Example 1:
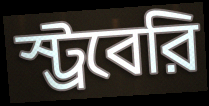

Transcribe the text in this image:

স্ট্রবেরি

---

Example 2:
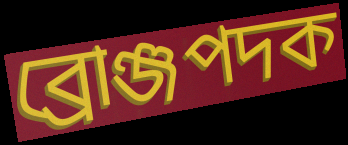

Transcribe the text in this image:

ব্রোঞ্জপদক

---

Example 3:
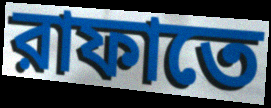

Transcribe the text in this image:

রাফাতে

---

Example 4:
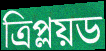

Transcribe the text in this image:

ত্রিপ্লয়ড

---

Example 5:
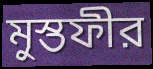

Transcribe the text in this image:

মুস্তফীর